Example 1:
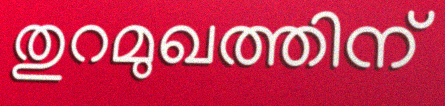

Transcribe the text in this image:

തുറമുഖത്തിന്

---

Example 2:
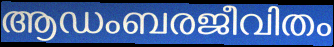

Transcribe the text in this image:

ആഡംബരജീവിതം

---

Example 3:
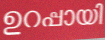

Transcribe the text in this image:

ഉറപ്പായി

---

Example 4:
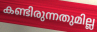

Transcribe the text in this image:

കണ്ടിരുന്നതുമില്ല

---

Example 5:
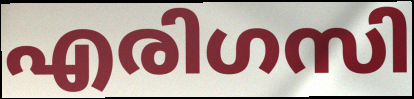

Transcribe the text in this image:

എരിഗസി